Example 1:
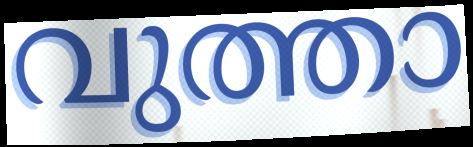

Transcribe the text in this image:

വുത്താ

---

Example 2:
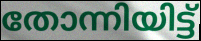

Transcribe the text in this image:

തോന്നിയിട്ട്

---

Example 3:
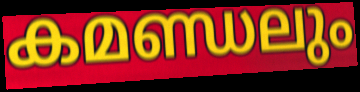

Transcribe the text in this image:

കമണ്ഡലും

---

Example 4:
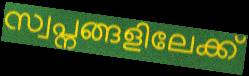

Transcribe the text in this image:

സ്വപ്നങ്ങളിലേക്ക്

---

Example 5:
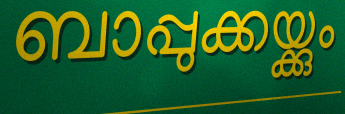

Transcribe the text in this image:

ബാപ്പുക്കയ്ക്കും